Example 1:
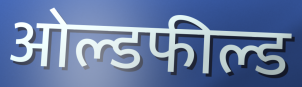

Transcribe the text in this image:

ओल्डफील्ड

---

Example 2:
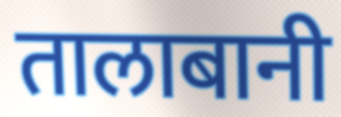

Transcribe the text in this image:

तालाबानी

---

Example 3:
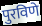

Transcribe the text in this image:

पुरविणे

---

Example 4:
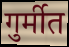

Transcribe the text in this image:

गुर्मीत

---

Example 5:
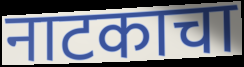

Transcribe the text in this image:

नाटकाचा